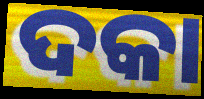
ଦକା